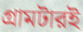
গ্রামটারই